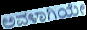
ಅವಳಾಗಿಯೇ